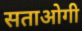
सताओगी